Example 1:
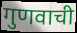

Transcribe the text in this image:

गुणवाची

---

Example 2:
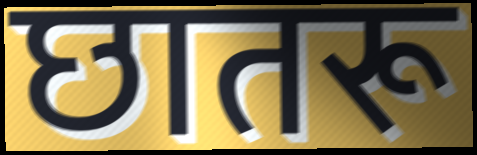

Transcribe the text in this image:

छातरू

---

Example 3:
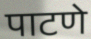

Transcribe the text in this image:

पाटणे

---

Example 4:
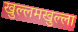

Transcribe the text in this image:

खुल्लमखुल्ला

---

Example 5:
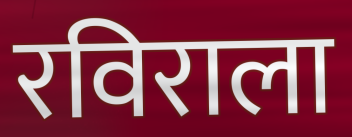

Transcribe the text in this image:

रविराला